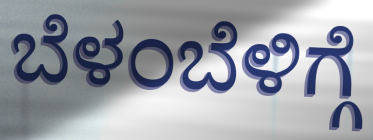
ಬೆಳಂಬೆಳಿಗ್ಗೆ